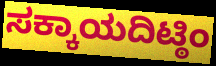
ಸಕ್ಕಾಯದಿಟ್ಠಿಂ